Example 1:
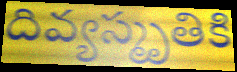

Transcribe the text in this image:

దివ్యస్మృతికి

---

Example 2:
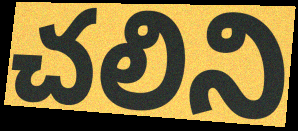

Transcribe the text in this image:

చలిని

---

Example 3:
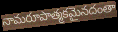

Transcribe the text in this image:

నామరూపాత్మకమైనదంతా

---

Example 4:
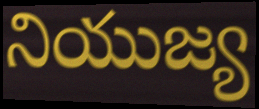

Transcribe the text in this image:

నియుజ్య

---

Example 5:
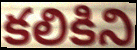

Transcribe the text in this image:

కలికిని